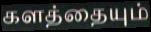
களத்தையும்